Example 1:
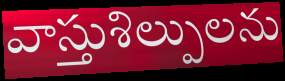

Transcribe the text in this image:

వాస్తుశిల్పులను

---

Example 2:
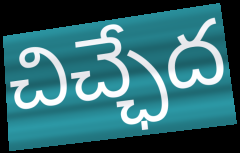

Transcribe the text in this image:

చిచ్ఛేద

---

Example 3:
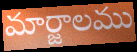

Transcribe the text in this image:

మార్జాలము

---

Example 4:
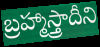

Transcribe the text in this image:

బ్రహ్మాస్త్రాదీని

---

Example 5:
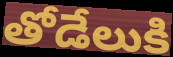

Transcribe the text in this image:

తోడేలుకి